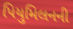
પિયુમિલનની